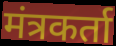
मंत्रकर्ता